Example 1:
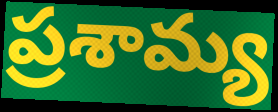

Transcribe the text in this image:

ప్రశామ్య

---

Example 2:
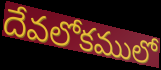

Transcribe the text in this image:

దేవలోకములో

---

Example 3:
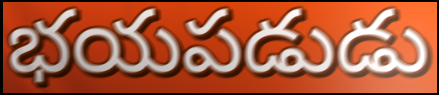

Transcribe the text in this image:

భయపడుడు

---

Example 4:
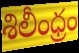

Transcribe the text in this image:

శిలీంధ్రం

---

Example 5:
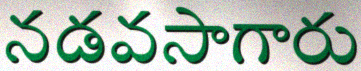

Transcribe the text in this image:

నడవసాగారు